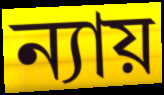
ন্যায়